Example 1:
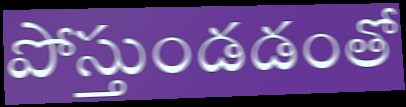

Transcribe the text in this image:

పోస్తుండడంతో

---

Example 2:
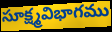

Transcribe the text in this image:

సూక్ష్మవిభాగము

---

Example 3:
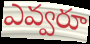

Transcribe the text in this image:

ఎవ్వరూ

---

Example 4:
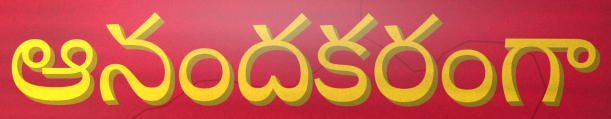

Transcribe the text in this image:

ఆనందకరంగా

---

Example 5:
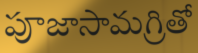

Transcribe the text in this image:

పూజాసామగ్రితో